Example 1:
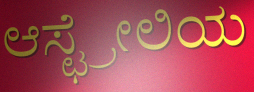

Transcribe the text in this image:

ಆಸ್ಟ್ರೇಲಿಯ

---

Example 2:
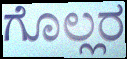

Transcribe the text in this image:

ಗೊಲ್ಲರ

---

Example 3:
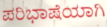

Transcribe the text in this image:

ಪರಿಭಾಷೆಯಾಗಿ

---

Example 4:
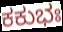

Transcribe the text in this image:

ಕಕುಭಃ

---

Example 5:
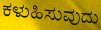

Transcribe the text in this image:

ಕಳುಹಿಸುವುದು